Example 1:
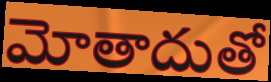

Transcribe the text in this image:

మోతాదుతో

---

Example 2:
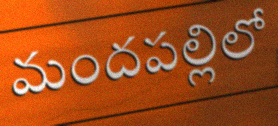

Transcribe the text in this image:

మందపల్లిలో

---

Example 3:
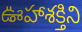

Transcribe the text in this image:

ఊహాశక్తిని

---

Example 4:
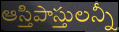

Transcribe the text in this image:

ఆస్తిపాస్తులన్నీ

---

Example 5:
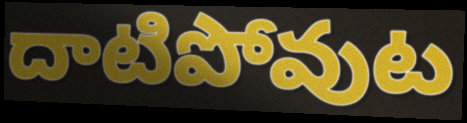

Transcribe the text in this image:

దాటిపోవుట